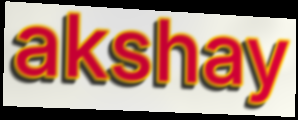
akshay